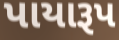
પાયારૂપ